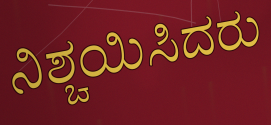
ನಿಶ್ಚಯಿಸಿದರು